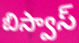
బిస్వాస్